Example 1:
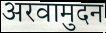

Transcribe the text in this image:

अरवामुदन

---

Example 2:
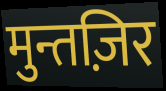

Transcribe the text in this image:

मुन्तज़िर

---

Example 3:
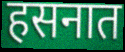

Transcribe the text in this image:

हसनात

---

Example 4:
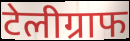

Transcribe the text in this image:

टेलीग्राफ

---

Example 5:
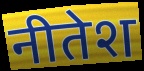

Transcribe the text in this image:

नीतेश